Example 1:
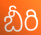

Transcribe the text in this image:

బీరి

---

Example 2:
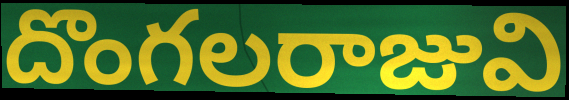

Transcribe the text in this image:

దొంగలరాజువి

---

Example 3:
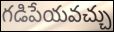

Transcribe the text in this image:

గడిపేయవచ్చు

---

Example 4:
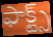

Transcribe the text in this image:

ఫాక్ట్స్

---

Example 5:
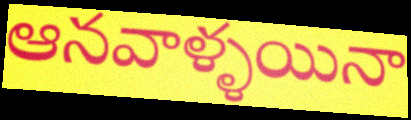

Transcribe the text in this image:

ఆనవాళ్ళయినా